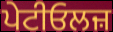
ਪੇਟੀਓਲਜ਼